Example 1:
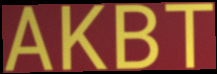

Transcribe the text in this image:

AKBT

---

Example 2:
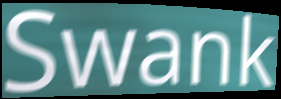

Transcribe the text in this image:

Swank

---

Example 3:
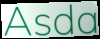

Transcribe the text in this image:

Asda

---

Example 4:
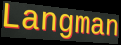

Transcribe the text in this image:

Langman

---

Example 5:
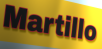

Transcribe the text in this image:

Martillo